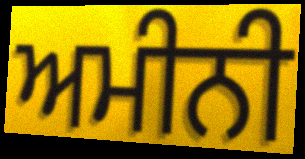
ਅਮੀਨੀ